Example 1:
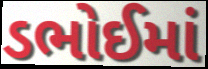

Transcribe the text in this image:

ડભોઈમાં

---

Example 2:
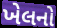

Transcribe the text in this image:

ખેલનો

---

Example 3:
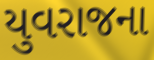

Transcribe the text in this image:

યુવરાજના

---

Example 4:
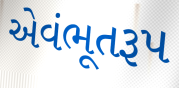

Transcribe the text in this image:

એવંભૂતરૂપ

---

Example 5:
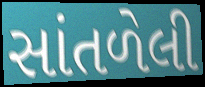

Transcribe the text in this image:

સાંતળેલી